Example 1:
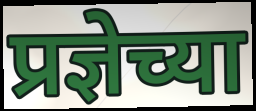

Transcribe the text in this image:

प्रज्ञेच्या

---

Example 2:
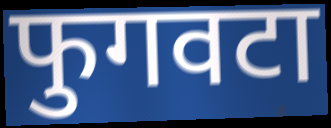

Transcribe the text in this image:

फुगवटा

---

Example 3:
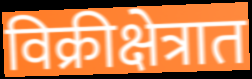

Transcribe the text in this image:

विक्रीक्षेत्रात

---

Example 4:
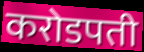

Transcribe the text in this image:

करोडपती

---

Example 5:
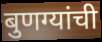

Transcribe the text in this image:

बुणग्यांची